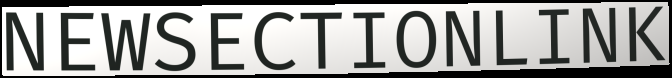
NEWSECTIONLINK